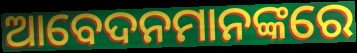
ଆବେଦନମାନଙ୍କରେ